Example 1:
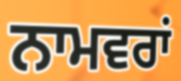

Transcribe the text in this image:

ਨਾਮਵਰਾਂ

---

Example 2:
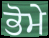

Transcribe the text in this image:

ਭੋਮੇ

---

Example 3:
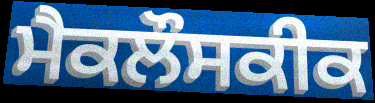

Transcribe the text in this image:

ਮੈਕਲੌਸਕੀਕ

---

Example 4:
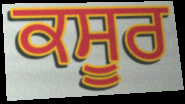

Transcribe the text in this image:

ਕਸੂਰ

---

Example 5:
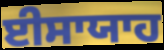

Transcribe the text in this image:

ਈਸਾਯਾਹ